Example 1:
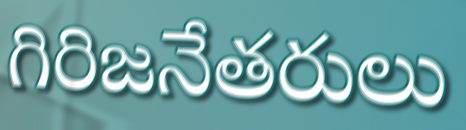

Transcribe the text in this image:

గిరిజనేతరులు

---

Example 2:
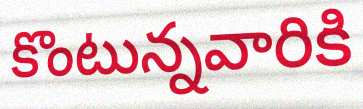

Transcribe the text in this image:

కొంటున్నవారికి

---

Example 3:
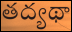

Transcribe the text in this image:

తద్యథా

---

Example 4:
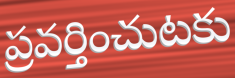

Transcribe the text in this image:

ప్రవర్తించుటకు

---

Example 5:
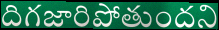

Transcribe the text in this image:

దిగజారిపోతుందని